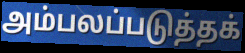
அம்பலப்படுத்தக்